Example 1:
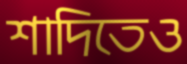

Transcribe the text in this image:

শাদিতেও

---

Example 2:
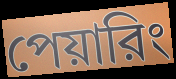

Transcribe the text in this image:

পেয়ারিং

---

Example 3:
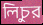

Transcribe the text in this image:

লিচুর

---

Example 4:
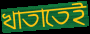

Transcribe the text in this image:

খাতাতেই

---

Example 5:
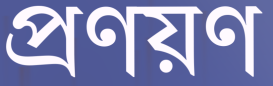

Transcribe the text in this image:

প্রণয়ণ